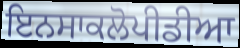
ਇਨਸਾਕਲੋਪੀਡੀਆ